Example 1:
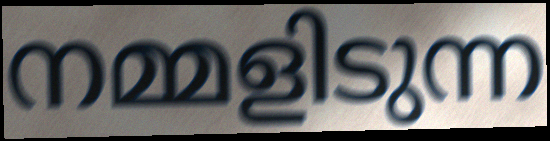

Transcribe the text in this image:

നമ്മളിടുന്ന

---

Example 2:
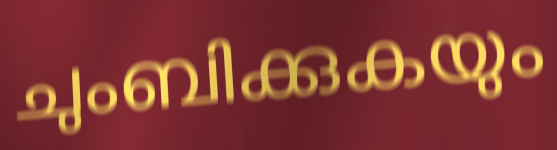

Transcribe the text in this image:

ചുംബിക്കുകയും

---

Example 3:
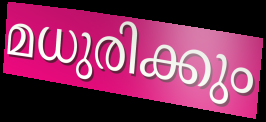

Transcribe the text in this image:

മധുരിക്കും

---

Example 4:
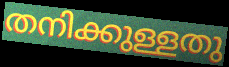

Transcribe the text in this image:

തനിക്കുള്ളതു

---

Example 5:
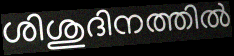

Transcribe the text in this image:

ശിശുദിനത്തിൽ